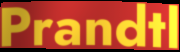
Prandtl